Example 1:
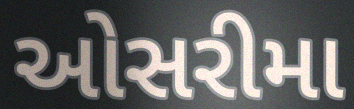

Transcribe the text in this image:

ઓસરીમા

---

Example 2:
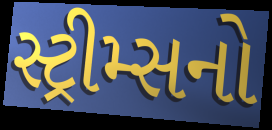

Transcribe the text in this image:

સ્ટ્રીમ્સનો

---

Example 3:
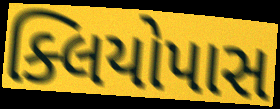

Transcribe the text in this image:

ક્લિયોપાસ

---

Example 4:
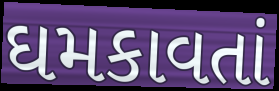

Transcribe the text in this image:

ઘમકાવતાં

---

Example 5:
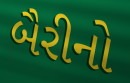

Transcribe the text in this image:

બૈરીનો